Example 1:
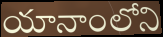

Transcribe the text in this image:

యానాంలోని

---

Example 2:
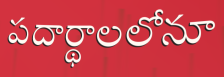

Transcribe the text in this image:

పదార్థాలలోనూ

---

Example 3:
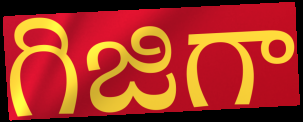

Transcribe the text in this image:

గిజిగా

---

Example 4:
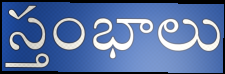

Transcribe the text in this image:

స్తంభాలు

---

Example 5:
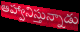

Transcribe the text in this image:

ఆహ్వానిస్తున్నాడు